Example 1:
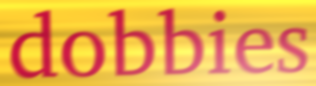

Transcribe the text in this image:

dobbies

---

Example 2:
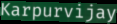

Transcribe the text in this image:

Karpurvijay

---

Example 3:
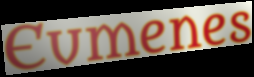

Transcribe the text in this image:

Eumenes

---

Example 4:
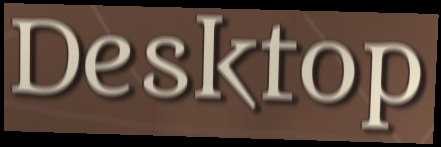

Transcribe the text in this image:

Desktop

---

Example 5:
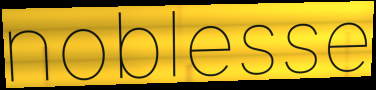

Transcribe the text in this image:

noblesse